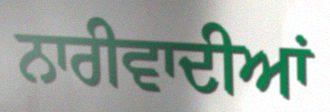
ਨਾਰੀਵਾਦੀਆਂ